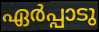
ഏർപ്പാടു